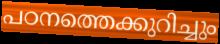
പഠനത്തെക്കുറിച്ചും